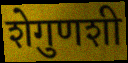
शेगुणशी